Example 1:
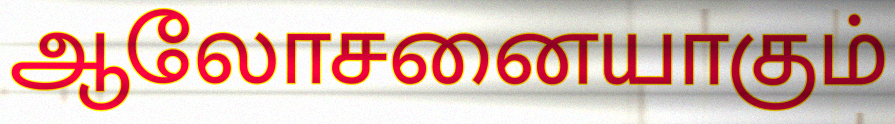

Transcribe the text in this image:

ஆலோசனையாகும்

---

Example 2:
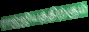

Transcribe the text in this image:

ராஜ்ஜியத்திற்கும்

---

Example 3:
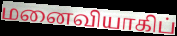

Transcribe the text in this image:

மனைவியாகிப்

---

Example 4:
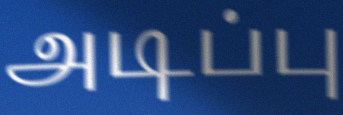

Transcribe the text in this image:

அடிப்பு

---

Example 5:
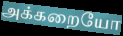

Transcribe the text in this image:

அக்கறையோ